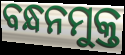
ବନ୍ଧନମୁକ୍ତ